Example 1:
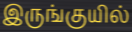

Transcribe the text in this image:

இருங்குயில்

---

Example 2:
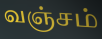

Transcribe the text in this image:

வஞ்சம்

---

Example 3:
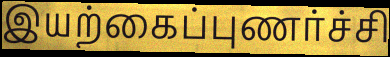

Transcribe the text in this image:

இயற்கைப்புணர்ச்சி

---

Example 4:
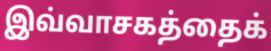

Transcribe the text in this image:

இவ்வாசகத்தைக்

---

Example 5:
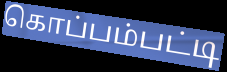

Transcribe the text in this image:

கொப்பம்பட்டி